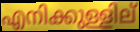
എനിക്കുള്ളില്